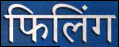
फिलिंग